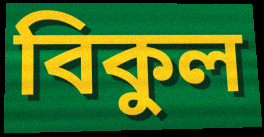
বিকুল